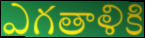
ఎగతాళికి